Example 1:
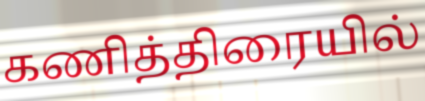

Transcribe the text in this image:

கணித்திரையில்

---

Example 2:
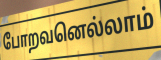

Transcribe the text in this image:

போறவனெல்லாம்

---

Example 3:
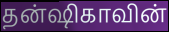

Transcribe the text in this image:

தன்ஷிகாவின்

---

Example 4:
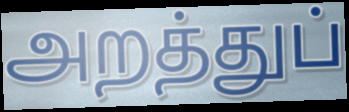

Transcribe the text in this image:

அறத்துப்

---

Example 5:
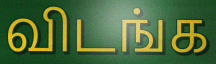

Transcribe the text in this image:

விடங்க